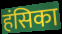
हंसिका